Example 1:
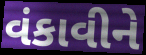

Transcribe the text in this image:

વંકાવીને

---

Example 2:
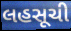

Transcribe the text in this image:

લહસૂચી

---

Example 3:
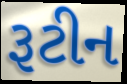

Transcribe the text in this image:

રૂટીન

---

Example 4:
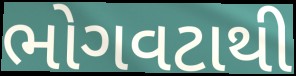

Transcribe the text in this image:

ભોગવટાથી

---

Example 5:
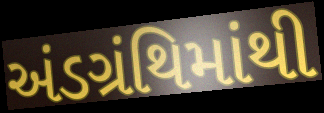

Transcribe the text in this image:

અંડગ્રંથિમાંથી